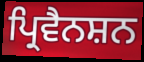
ਪ੍ਰਿਵੈਨਸ਼ਨ